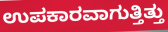
ಉಪಕಾರವಾಗುತ್ತಿತ್ತು